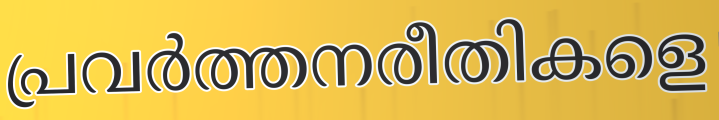
പ്രവർത്തനരീതികളെ